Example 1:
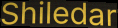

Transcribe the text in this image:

Shiledar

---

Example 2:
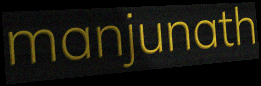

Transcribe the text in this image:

manjunath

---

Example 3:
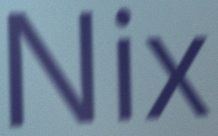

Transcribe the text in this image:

Nix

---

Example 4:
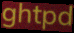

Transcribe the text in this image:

ghtpd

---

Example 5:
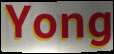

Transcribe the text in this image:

Yong